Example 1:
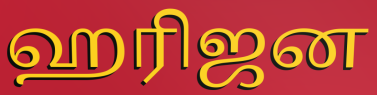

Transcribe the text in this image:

ஹரிஜன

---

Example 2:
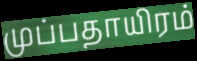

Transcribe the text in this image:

முப்பதாயிரம்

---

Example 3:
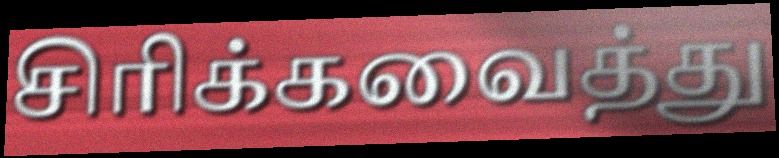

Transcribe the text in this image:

சிரிக்கவைத்து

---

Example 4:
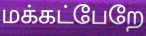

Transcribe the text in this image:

மக்கட்பேறே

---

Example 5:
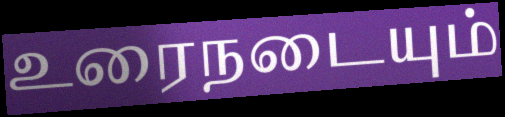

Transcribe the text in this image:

உரைநடையும்